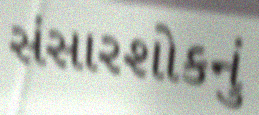
સંસારશોકનું